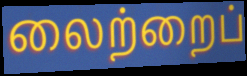
லைற்றைப்